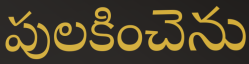
పులకించెను